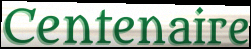
Centenaire